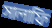
সালাফি